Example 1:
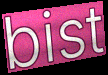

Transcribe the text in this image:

bist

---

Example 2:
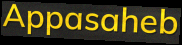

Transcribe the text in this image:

Appasaheb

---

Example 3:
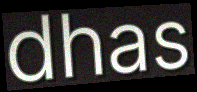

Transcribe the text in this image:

dhas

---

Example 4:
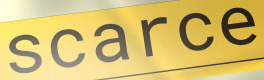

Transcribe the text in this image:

scarce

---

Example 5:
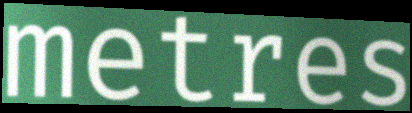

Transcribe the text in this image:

metres